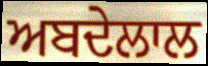
ਅਬਦੇਲਾਲ